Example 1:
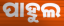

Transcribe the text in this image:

ପାହୁଲ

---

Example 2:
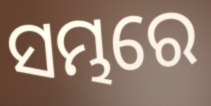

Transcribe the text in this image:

ସମ୍ଭରେ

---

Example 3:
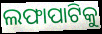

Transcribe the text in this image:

ଲଫାପାଟିକୁ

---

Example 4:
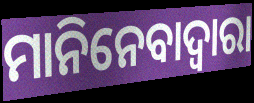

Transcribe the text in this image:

ମାନିନେବାଦ୍ୱାରା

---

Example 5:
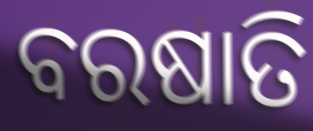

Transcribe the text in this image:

ବରଷାତି